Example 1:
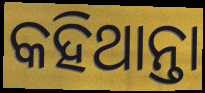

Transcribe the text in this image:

କହିଥାନ୍ତା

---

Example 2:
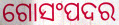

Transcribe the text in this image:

ଗୋସଂପଦର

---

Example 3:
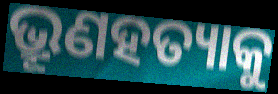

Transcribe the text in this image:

ଭ୍ରୂଣହତ୍ୟାକୁ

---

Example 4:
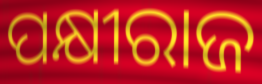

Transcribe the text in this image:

ପକ୍ଷୀରାଜ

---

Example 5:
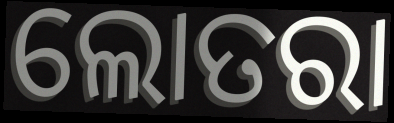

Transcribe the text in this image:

ଲୋତରା